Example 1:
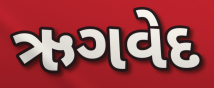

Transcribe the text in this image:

ઋગવેદ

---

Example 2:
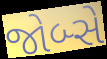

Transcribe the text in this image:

જોબ્સે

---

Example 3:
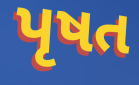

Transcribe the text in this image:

પૃષત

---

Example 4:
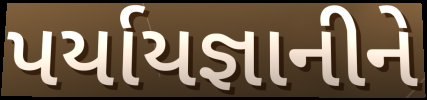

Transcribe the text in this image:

પર્યાયજ્ઞાનીને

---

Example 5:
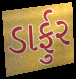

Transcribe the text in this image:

ડાર્ફુર